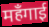
महँगाई